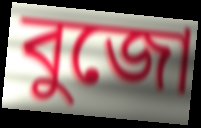
বুজো